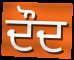
ਦੌਦ